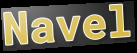
Navel